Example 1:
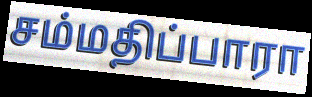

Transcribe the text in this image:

சம்மதிப்பாரா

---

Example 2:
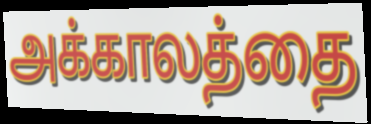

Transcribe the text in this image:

அக்காலத்தை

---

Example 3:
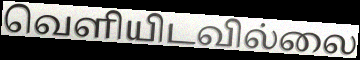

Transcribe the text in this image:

வெளியிடவில்லை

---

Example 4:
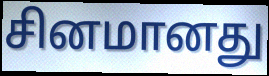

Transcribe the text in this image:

சினமானது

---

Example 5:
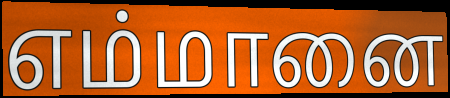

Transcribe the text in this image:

எம்மானை